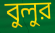
বুলুর